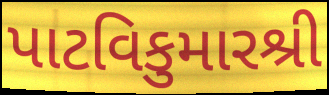
પાટવિકુમારશ્રી